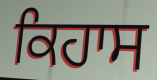
ਕਿਹਾਸ